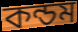
কন্ডম